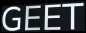
GEET